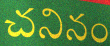
చనినం